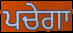
ਪਚੇਗਾ